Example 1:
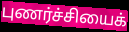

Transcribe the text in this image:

புணர்ச்சியைக்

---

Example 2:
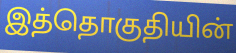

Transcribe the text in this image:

இத்தொகுதியின்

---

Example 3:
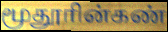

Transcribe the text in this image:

மூதூரின்கண்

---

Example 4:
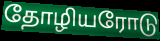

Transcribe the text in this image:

தோழியரோடு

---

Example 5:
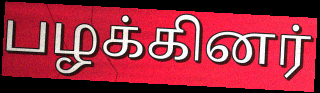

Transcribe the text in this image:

பழக்கினர்